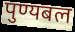
पुण्यबल